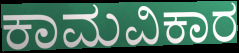
ಕಾಮವಿಕಾರ